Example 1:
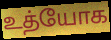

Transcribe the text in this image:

உத்யோக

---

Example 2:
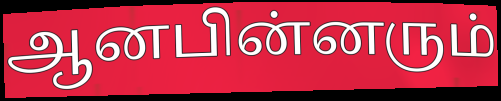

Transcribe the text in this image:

ஆனபின்னரும்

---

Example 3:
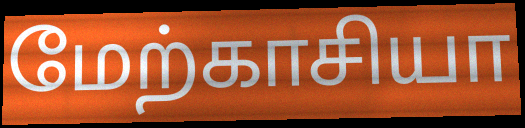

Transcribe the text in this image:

மேற்காசியா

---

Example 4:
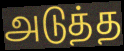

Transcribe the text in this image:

அடுத்த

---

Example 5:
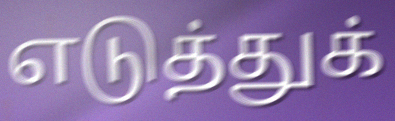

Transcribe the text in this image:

எடுத்துக்